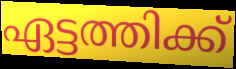
ഏട്ടത്തിക്ക്